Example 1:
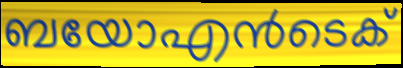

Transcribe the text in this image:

ബയോഎൻടെക്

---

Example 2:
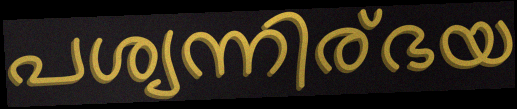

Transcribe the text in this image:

പശ്യന്നിര്ഭയ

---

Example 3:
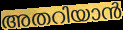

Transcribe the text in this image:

അതറിയാൻ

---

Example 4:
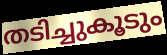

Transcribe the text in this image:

തടിച്ചുകൂടും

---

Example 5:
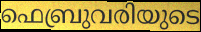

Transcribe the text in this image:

ഫെബ്രുവരിയുടെ